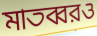
মাতব্বরও